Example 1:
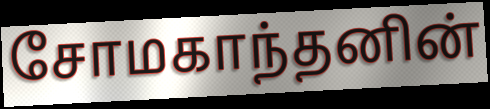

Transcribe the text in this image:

சோமகாந்தனின்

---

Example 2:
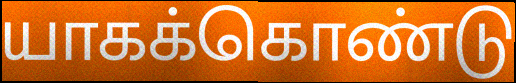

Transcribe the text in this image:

யாகக்கொண்டு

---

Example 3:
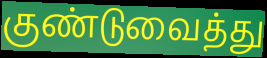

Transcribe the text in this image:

குண்டுவைத்து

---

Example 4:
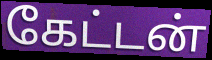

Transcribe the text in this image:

கேட்டன்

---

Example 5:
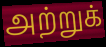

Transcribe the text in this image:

அற்றுக்